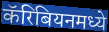
कॅरिबियनमध्ये